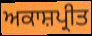
ਅਕਾਸ਼ਪ੍ਰੀਤ